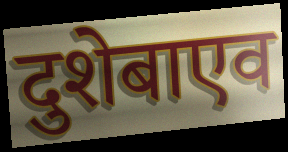
दुशेबाएव